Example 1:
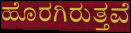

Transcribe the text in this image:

ಹೊರಗಿರುತ್ತವೆ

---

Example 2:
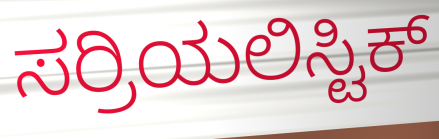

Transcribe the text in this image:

ಸರ್ರಿಯಲಿಸ್ಟಿಕ್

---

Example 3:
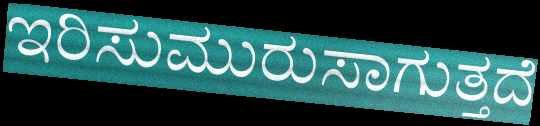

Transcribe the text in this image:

ಇರಿಸುಮುರುಸಾಗುತ್ತದೆ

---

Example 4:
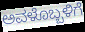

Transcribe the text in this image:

ಅವಳೊಬ್ಬಳಿಗೆ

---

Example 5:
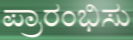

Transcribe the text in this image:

ಪ್ರಾರಂಭಿಸು